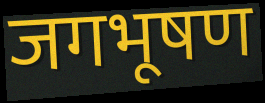
जगभूषण